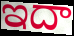
ఇదా